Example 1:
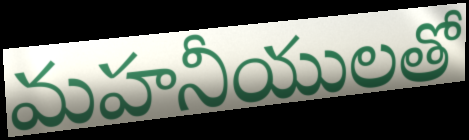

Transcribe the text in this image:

మహనీయులతో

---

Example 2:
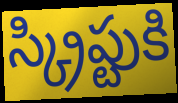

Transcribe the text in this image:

స్క్రిప్టుకి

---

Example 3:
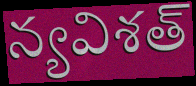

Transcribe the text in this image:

న్యవిశత్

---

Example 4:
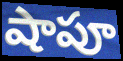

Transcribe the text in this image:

షాపూ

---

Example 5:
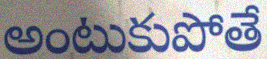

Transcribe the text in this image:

అంటుకుపోతే